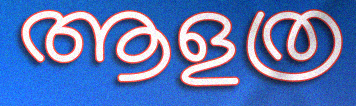
ആളത്ര